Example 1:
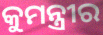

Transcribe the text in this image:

କୁମନ୍ତ୍ରୀର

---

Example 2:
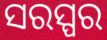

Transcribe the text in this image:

ସରସ୍ପର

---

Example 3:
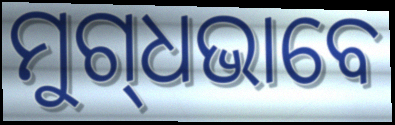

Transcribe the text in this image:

ମୁଗ୍‌ଧଭାବେ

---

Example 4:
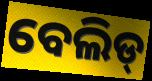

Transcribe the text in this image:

ବେଲିଡ୍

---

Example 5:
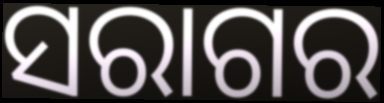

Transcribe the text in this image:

ସରାଗର